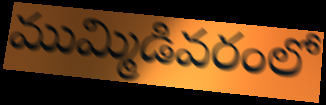
ముమ్మిడివరంలో